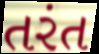
તરંત